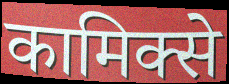
कामिक्से